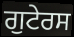
ਗੁਟੇਰਸ